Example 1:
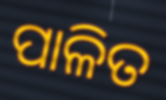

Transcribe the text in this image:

ପାଳିତ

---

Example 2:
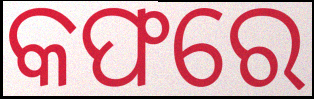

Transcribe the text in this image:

କଫରେ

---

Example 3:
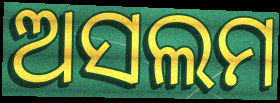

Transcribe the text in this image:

ଅସଲମ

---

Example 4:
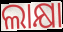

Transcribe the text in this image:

ଲାକ୍ଷା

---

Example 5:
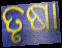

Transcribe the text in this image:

ତୃଷା